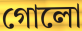
গোলো